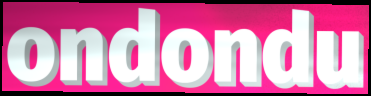
ondondu